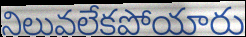
నిలువలేకపోయారు